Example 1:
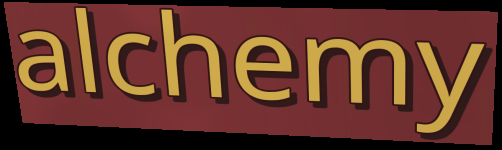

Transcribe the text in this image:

alchemy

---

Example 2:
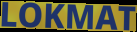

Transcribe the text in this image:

LOKMAT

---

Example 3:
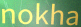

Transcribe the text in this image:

nokha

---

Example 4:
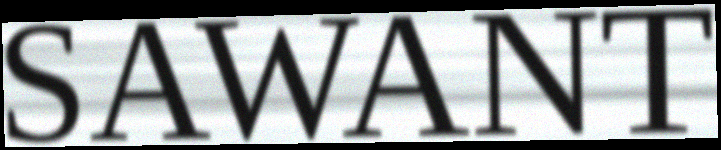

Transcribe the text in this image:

SAWANT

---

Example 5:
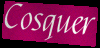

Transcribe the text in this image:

Cosquer